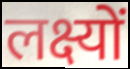
लक्ष्‍यों